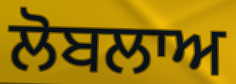
ਲੋਬਲਾਅ